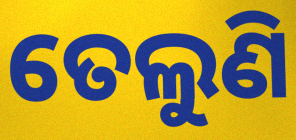
ତେଲୁଣି